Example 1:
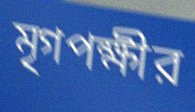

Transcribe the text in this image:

মৃগপক্ষীর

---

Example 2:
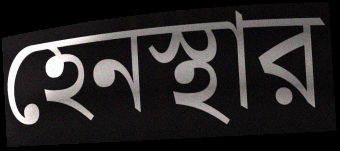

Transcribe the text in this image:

হেনস্থার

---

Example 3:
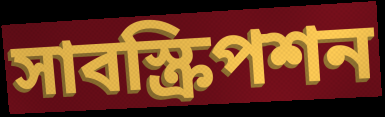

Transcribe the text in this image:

সাবস্ক্রিপশন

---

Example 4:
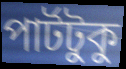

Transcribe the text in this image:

পার্টটুকু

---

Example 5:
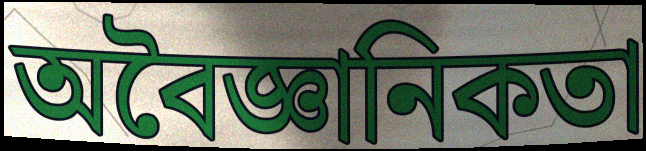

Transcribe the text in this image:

অবৈজ্ঞানিকতা